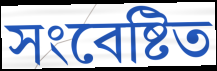
সংবেষ্টিত